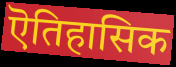
ऎतिहासिक